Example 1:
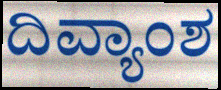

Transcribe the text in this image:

ದಿವ್ಯಾಂಶ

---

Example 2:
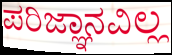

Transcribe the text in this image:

ಪರಿಜ್ಞಾನವಿಲ್ಲ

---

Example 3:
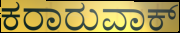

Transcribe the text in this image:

ಕರಾರುವಾಕ್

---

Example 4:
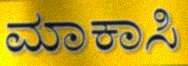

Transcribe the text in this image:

ಮಾಕಾಸಿ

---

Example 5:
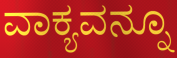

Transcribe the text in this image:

ವಾಕ್ಯವನ್ನೂ